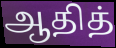
ஆதித்